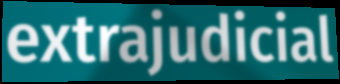
extrajudicial